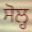
ਸੋਲ੍ਹ